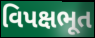
વિપક્ષભૂત